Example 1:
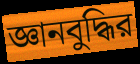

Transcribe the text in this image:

জ্ঞানবুদ্ধির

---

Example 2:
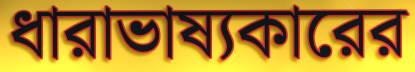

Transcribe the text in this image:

ধারাভাষ্যকারের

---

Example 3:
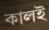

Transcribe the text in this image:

কালই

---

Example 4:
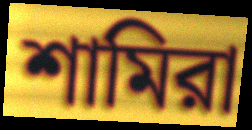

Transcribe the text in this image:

শামিরা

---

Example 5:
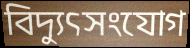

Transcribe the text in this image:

বিদ্যুৎসংযোগ